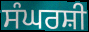
ਸੰਘਰਸ਼ੀ